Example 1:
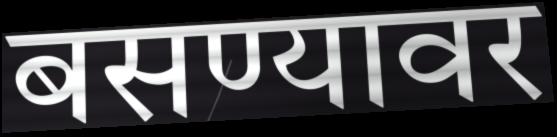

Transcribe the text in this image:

बसण्यावर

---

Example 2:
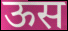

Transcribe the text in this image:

ऊस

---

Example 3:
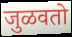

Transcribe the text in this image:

जुळवतो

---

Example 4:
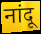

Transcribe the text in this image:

नांदू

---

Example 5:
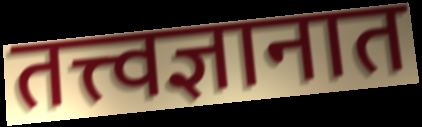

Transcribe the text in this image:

तत्त्वज्ञानात